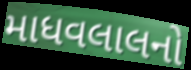
માધવલાલનો